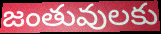
జంతువులకు